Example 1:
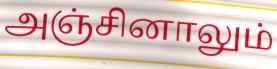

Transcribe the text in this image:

அஞ்சினாலும்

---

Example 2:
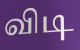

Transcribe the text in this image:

விடி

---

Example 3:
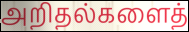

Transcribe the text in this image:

அறிதல்களைத்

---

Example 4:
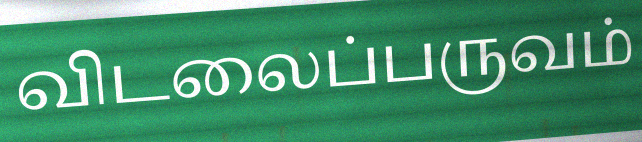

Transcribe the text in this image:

விடலைப்பருவம்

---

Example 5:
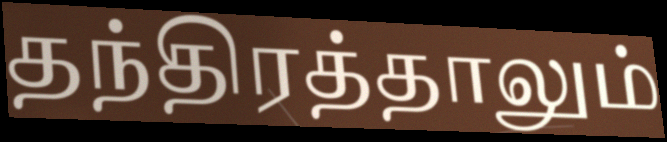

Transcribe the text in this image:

தந்திரத்தாலும்